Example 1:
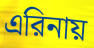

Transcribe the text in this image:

এরিনায়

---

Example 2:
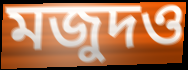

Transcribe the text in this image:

মজুদও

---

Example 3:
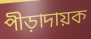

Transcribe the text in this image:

পীড়াদায়ক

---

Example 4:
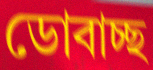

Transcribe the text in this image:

ডোবাচ্ছ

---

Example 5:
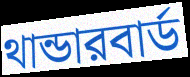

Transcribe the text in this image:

থান্ডারবার্ড